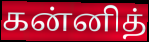
கன்னித்